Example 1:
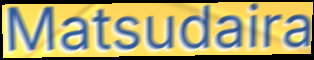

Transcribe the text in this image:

Matsudaira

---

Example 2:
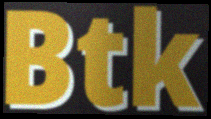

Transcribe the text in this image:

Btk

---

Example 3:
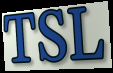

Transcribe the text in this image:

TSL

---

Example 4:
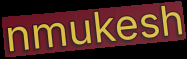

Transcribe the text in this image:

nmukesh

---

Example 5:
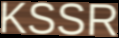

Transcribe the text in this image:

KSSR